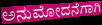
ಅನುಮೋದನೆಗಾಗಿ